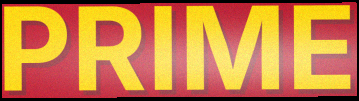
PRIME